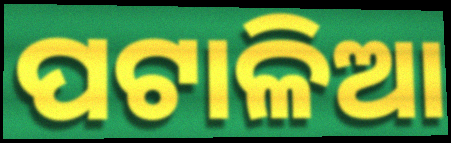
ପଟାଳିଆ